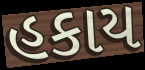
હકાય